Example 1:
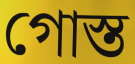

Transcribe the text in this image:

গোস্ত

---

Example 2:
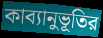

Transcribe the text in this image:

কাব্যানুভূতির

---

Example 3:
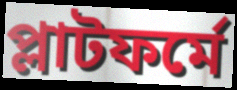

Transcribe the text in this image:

প্লাটফর্মে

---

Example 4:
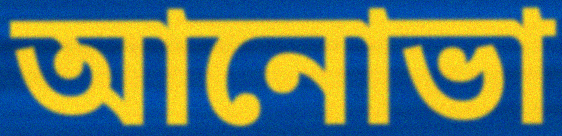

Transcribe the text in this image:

আনোভা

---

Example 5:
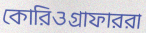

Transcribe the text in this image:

কোরিওগ্রাফাররা